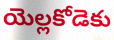
యెల్లకోడెకు